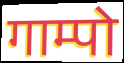
गाम्पो